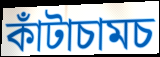
কাঁটাচামচ